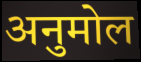
अनुमोल